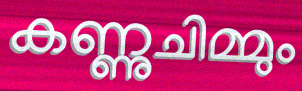
കണ്ണുചിമ്മും